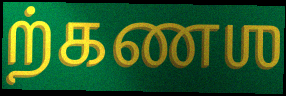
ற்கணஶ